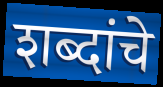
शब्दांचे